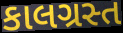
કાલગ્રસ્ત